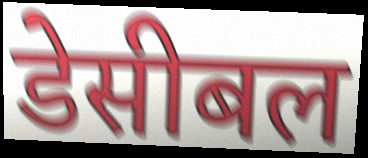
डेसीबल